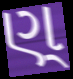
ણ્